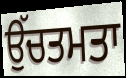
ਉੱਚਤਮਤਾ